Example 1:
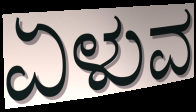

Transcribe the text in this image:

ಏಳುವ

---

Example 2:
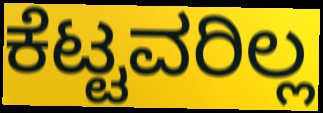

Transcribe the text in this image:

ಕೆಟ್ಟವರಿಲ್ಲ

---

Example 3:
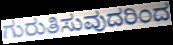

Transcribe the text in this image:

ಗುರುತಿಸುವುದರಿಂದ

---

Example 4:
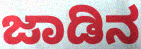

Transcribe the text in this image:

ಜಾಡಿನ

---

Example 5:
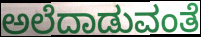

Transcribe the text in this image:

ಅಲೆದಾಡುವಂತೆ